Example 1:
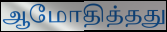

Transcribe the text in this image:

ஆமோதித்தது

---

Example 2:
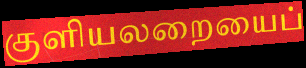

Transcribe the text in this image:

குளியலறையைப்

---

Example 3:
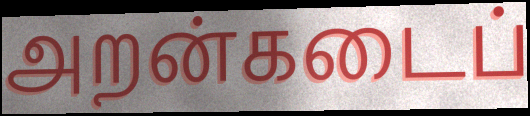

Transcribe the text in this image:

அறன்கடைப்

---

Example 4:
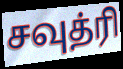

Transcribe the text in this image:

சவுத்ரி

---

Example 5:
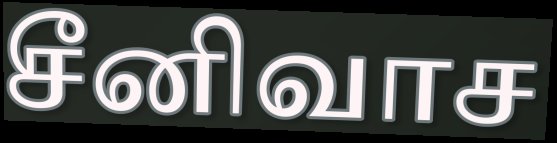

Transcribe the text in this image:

சீனிவாச